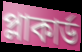
প্লাকার্ড